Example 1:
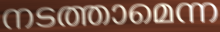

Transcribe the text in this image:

നടത്താമെന്ന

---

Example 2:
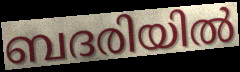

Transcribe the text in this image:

ബദരിയിൽ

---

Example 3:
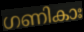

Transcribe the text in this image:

ഗണികാഃ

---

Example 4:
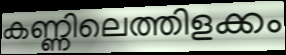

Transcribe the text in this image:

കണ്ണിലെത്തിളക്കം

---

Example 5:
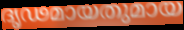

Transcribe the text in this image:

ദൃഢമായതുമായ